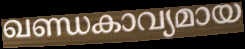
ഖണ്ഡകാവ്യമായ